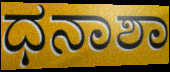
ಧನಾಶಾ